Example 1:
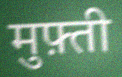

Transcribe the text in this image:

मुफ़्ती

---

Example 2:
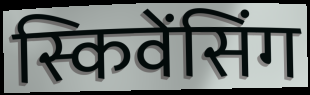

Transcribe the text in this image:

स्किवेंसिंग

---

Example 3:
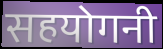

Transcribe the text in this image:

सहयोगनी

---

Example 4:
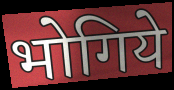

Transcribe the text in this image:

भोगिये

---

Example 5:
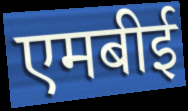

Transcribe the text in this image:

एमबीई